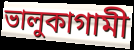
ভালুকাগামী